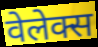
वेलेक्स